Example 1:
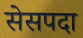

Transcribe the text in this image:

सेसपदा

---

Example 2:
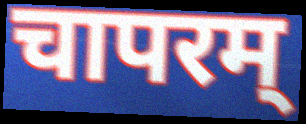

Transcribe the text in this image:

चापरम्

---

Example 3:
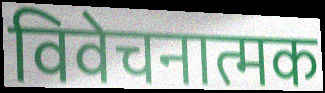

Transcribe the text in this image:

विवेचनात्‍मक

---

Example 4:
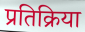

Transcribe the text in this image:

प्रतिक्रिया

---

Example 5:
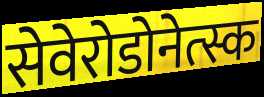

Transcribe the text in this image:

सेवेरोडोनेत्स्क